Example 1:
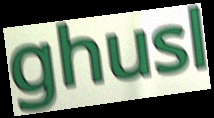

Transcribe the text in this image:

ghusl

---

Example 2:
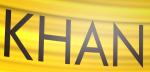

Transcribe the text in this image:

KHAN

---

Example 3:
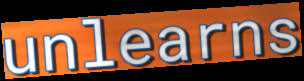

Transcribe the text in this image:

unlearns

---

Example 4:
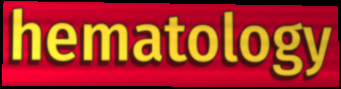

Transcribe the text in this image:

hematology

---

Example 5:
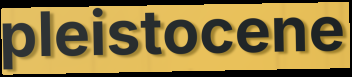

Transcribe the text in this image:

pleistocene